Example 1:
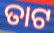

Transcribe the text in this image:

ତାଟ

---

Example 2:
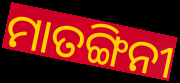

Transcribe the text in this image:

ମାତଙ୍ଗିନୀ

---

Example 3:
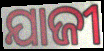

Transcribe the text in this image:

ଯାଜୀ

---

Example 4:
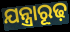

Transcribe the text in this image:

ଯନ୍ତ୍ରାରୂଢ଼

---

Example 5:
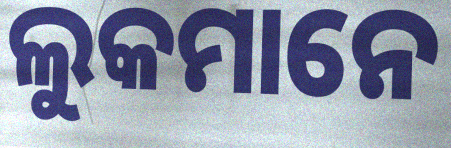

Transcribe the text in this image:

ଲୁକମାନେ